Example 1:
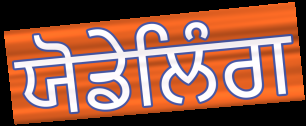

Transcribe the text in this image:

ਯੋਡੇਲਿੰਗ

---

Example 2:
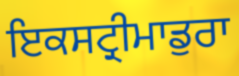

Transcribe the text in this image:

ਇਕਸਟ੍ਰੀਮਾਡੁਰਾ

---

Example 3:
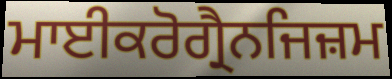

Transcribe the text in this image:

ਮਾਈਕਰੋਗ੍ਰੈਨਜਿਜ਼ਮ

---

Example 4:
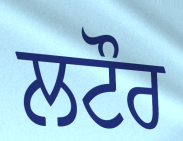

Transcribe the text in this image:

ਲਟੌਰ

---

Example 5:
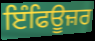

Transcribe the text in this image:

ਇੰਫਿਊਜ਼ਰ